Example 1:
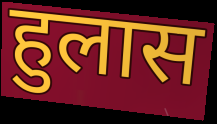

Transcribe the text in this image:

हुलास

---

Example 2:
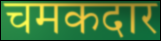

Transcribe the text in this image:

चमकदार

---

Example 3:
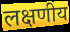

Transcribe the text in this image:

लक्षणीय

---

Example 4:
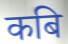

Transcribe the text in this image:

कबि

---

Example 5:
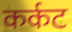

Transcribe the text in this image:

कर्कट